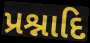
પ્રશ્નાદિ